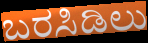
ಬರಸಿಡಿಲು